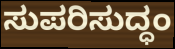
ಸುಪರಿಸುದ್ಧಂ